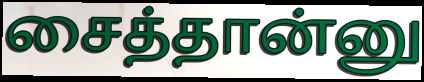
சைத்தான்னு